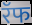
रॅफ